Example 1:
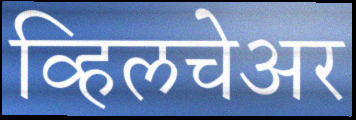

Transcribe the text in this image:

व्हिलचेअर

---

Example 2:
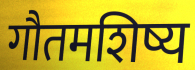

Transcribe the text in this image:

गौतमशिष्य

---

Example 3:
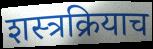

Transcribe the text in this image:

शस्त्रक्रियाच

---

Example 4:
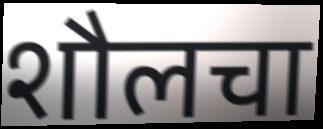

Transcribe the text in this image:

शौलचा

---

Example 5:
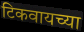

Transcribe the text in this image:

टिकवायच्या